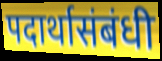
पदार्थासंबंधी